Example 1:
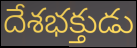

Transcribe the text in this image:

దేశభక్తుడు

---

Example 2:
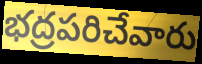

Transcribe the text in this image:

భద్రపరిచేవారు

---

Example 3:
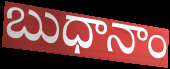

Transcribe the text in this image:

బుధానాం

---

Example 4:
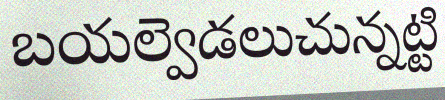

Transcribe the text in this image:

బయల్వెడలుచున్నట్టి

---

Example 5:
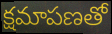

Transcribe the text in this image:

క్షమాపణతో